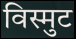
विस्मुट